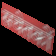
सचेतकों